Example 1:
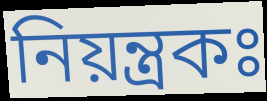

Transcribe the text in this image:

নিয়ন্ত্রকঃ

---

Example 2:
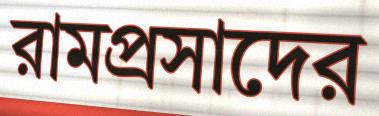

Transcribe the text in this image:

রামপ্রসাদের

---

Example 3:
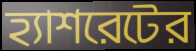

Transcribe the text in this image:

হ্যাশরেটের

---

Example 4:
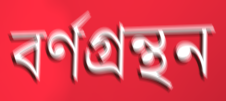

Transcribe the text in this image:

বর্ণগ্রন্থন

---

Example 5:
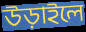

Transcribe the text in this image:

উড়াইলে